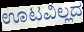
ಊಟವಿಲ್ಲದ